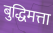
बुद्धिमत्ता